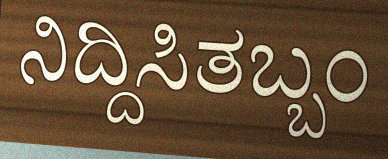
ನಿದ್ದಿಸಿತಬ್ಬಂ